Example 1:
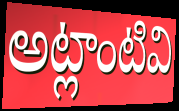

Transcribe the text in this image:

అట్లాంటివి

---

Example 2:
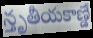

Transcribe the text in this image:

న్తృతీయకాణ్డే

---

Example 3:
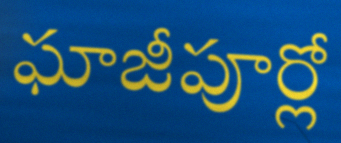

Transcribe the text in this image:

ఘాజీపూర్లో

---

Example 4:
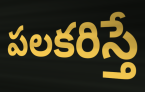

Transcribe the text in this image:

పలకరిస్తే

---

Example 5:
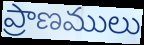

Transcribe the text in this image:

ప్రాణములు